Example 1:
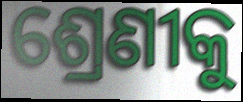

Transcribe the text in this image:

ଶ୍ରେଣୀକୁ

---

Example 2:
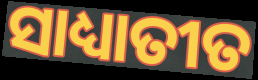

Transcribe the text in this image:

ସାଧ୍ୟାତୀତ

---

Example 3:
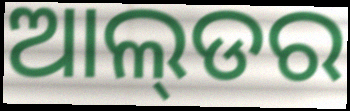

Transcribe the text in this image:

ଆଲ୍‌ଡର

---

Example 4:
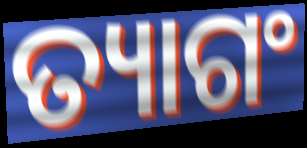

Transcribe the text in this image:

ତ୍ୟାଗଂ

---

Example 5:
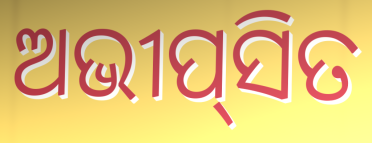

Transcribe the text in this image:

ଅଭୀପ୍‌ସିତ